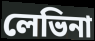
লেভিনা